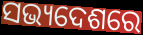
ସଭ୍ୟଦେଶରେ